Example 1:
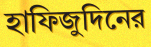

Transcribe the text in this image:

হাফিজুদিনের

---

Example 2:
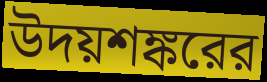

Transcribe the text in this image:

উদয়শঙ্করের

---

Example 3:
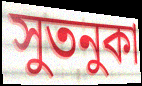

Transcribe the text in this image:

সুতনুকা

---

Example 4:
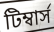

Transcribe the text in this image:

টিম্বার্স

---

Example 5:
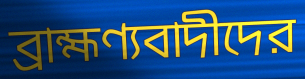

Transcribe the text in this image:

ব্রাহ্মণ্যবাদীদের